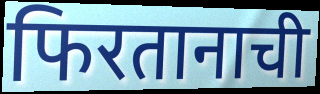
फिरतानाची